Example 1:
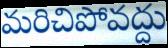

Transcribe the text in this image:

మరిచిపోవద్దు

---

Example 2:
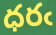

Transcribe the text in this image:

ధరఁ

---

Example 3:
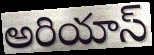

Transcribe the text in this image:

అరియాస్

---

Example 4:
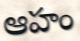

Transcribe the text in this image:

ఆహం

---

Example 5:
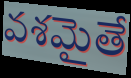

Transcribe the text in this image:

వశమైతే